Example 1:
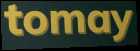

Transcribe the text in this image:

tomay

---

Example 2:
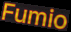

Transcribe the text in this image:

Fumio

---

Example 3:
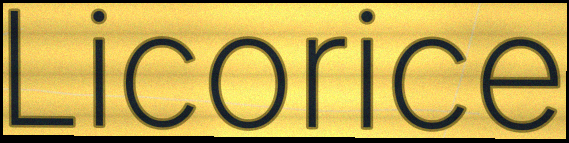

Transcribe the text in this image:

Licorice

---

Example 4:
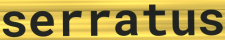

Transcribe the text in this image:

serratus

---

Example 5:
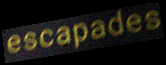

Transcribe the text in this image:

escapades